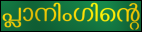
പ്ലാനിംഗിന്റെ